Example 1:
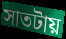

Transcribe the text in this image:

সাতটায়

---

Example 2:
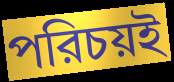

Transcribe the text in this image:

পরিচয়ই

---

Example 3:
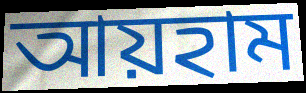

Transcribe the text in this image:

আয়হাম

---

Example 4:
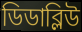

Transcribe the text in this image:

ডিডাব্লিউ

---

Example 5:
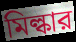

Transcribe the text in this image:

মিল্কার